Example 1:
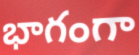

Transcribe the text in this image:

భాగంగా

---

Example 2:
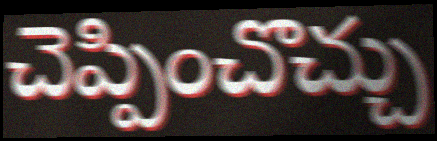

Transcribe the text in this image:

చెప్పించొచ్చు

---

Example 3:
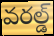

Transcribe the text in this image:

వరల్డ్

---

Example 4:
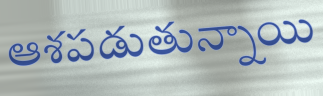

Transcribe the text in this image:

ఆశపడుతున్నాయి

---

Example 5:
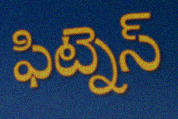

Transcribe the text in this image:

ఫిట్నెస్